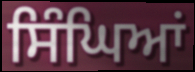
ਸਿੰਘਿਆਂ